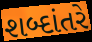
શબ્દાંતરે